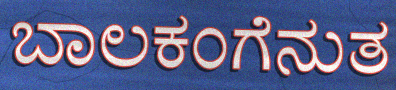
ಬಾಲಕಂಗೆನುತ